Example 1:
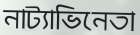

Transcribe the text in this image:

নাট্যাভিনেতা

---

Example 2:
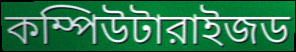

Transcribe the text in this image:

কম্পিউটারাইজড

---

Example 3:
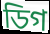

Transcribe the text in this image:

ডিগ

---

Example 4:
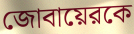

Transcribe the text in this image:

জোবায়েরকে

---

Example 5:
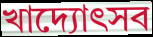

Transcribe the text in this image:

খাদ্যোৎসব